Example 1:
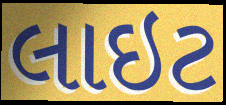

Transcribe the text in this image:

લાઇટ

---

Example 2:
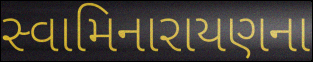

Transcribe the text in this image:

સ્વામિનારાયણના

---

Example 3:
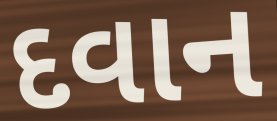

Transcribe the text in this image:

દવાન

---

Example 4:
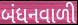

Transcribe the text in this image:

બંધનવાળી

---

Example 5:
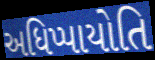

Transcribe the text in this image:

અધિપ્પાયોતિ